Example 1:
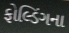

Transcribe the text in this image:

ફોલ્ડિંગના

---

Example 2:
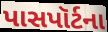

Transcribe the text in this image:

પાસપૉર્ટના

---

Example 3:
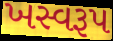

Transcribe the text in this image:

ખસ્વરૂપ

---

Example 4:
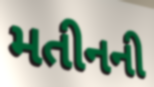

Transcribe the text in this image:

મતીનની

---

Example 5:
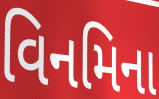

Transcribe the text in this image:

વિનમિના